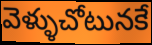
వెళ్ళుచోటునకే